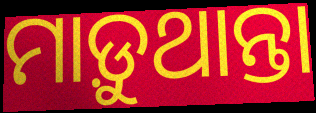
ମାଡ଼ୁଥାନ୍ତା